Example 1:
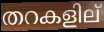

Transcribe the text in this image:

തറകളില്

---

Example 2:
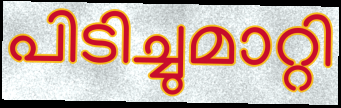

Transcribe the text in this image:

പിടിച്ചുമാറ്റി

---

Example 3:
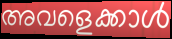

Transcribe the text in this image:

അവളെക്കാൾ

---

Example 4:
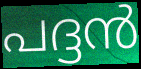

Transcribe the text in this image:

പദ്ദൻ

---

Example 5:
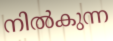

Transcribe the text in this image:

നിൽകുന്ന